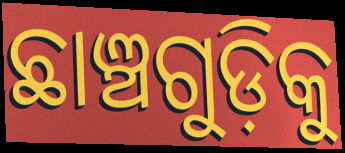
ଛାଞ୍ଚଗୁଡ଼ିକୁ